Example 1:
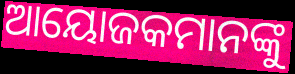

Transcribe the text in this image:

ଆୟୋଜକମାନଙ୍କୁ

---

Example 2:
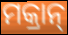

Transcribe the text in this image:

ମକ୍ରାନ୍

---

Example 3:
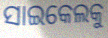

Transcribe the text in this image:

ସାଇକେଲକୁ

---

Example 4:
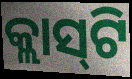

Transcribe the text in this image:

କ୍ଲାସ୍‌ଟି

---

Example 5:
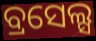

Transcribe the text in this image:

ବ୍ରସେଲ୍ସ